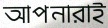
আপনারাই